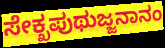
ಸೇಕ್ಖಪುಥುಜ್ಜನಾನಂ